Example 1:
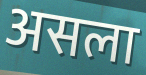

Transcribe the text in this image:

असला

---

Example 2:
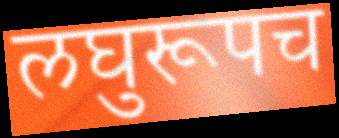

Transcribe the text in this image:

लघुरूपच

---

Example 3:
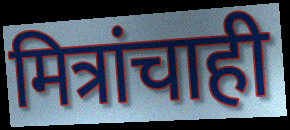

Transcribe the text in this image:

मित्रांचाही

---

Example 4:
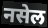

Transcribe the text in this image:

नसेल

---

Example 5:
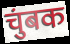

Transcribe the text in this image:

चुंबक